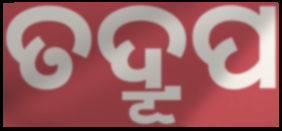
ତଦ୍ରୂପ